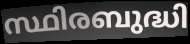
സ്ഥിരബുദ്ധി